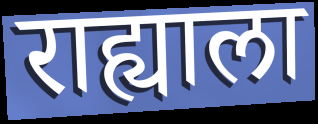
राह्याला